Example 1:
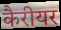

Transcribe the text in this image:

कैरीयर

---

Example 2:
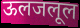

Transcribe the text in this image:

ऊलजलूल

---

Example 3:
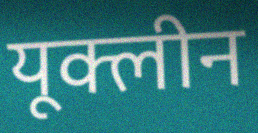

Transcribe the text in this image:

यूक्लीन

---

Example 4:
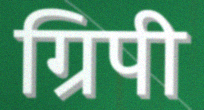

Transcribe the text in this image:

ग्रिपी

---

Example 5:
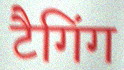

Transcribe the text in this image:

टैगिंग